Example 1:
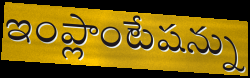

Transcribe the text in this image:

ఇంప్లాంటేషన్ను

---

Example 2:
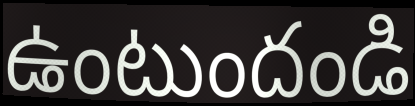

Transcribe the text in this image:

ఉంటుందండి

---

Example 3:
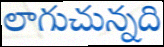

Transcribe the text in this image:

లాగుచున్నది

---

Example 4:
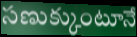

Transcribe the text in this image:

సణుక్కుంటూనే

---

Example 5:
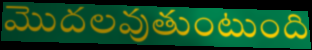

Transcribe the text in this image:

మొదలవుతుంటుంది